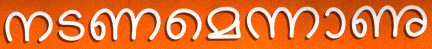
നടണമെന്നാണു